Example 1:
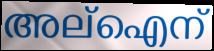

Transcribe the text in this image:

അല്ഐന്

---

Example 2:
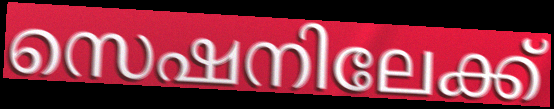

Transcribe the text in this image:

സെഷനിലേക്ക്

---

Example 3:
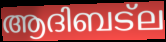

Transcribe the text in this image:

ആദിബട്ല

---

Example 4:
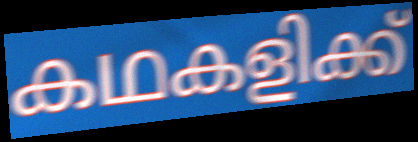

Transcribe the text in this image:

കഥകളിക്ക്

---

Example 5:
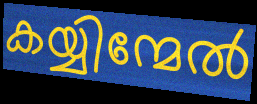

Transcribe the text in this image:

കയ്യിന്മേൽ